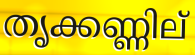
തൃക്കണ്ണില്